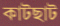
কাটছাট